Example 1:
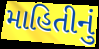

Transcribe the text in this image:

માહિતીનું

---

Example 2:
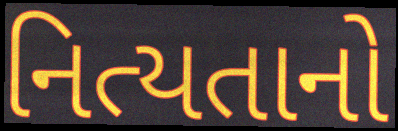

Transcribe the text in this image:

નિત્યતાનો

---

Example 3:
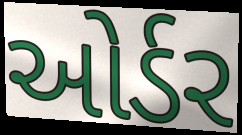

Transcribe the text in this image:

ઓર્ડર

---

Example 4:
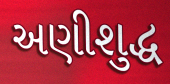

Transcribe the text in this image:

અણીશુદ્ધ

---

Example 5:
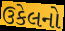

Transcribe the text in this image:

ઉકેલનો